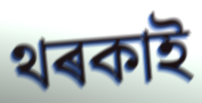
থৰকাই